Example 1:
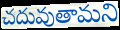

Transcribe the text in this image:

చదువుతామని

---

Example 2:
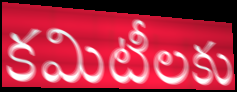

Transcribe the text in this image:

కమిటీలకు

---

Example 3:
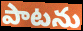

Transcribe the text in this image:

పాటను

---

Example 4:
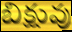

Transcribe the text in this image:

బిక్షువు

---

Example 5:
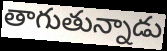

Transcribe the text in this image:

తాగుతున్నాడు